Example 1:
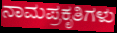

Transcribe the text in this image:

ನಾಮಪ್ರಕೃತಿಗಳು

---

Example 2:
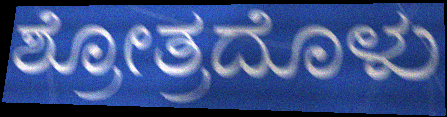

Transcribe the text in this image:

ಶ್ರೋತ್ರದೊಳು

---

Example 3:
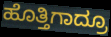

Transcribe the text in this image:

ಹೊತ್ತಿಗಾದ್ರೂ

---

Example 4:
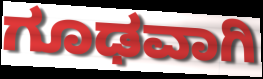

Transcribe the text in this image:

ಗೂಢವಾಗಿ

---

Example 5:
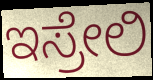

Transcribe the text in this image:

ಇಸ್ರೇಲಿ